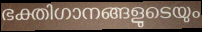
ഭക്തിഗാനങ്ങളുടെയും